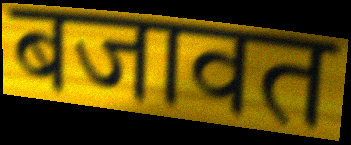
बजावत